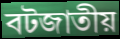
বটজাতীয়